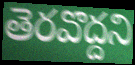
తెరవొద్దని